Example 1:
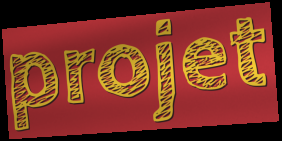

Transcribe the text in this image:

projet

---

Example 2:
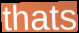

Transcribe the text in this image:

thats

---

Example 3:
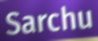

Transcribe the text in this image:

Sarchu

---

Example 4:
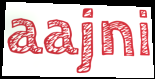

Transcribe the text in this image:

aajni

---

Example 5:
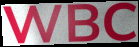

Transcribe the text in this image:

WBC